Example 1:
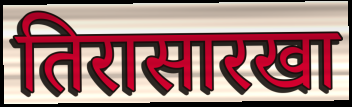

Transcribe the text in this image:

तिरासारखा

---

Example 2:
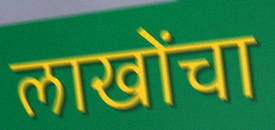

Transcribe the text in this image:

लाखोंचा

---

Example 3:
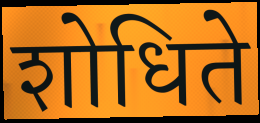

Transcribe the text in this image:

शोधिते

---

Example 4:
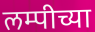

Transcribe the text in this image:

लम्पीच्या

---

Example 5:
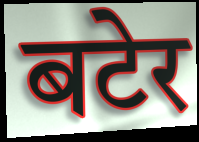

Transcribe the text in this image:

बटेर